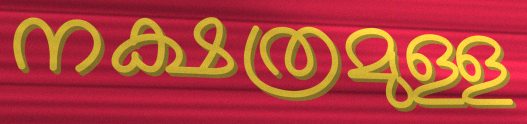
നക്ഷത്രമുള്ള